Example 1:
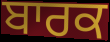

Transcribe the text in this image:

ਬਾਰਕ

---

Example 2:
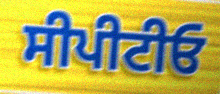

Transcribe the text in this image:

ਸੀਪੀਟੀਓ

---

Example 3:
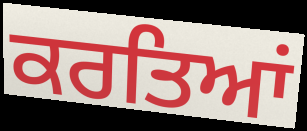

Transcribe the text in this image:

ਕਰਤਿਆਂ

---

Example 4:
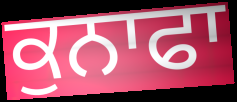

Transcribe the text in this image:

ਕੁਨਾਫਾ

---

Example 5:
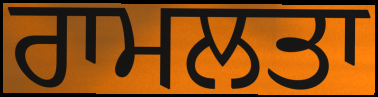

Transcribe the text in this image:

ਰਾਮਲਤਾ